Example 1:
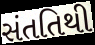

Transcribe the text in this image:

સંતતિથી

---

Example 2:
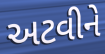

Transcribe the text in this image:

અટવીને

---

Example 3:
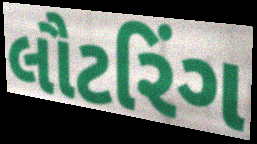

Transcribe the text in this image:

લૌટરિંગ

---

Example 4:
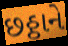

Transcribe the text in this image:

છઠ્ઠાને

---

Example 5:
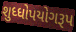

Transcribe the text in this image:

શુધ્ધોપયોગરૂપ